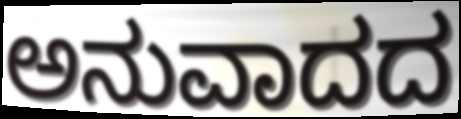
ಅನುವಾದದ